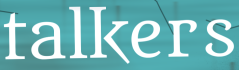
talkers